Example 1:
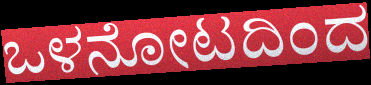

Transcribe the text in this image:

ಒಳನೋಟದಿಂದ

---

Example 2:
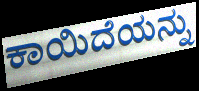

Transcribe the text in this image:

ಕಾಯಿದೆಯನ್ನು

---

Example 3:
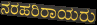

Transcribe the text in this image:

ನರಹರಿರಾಯರು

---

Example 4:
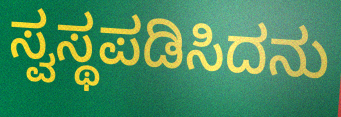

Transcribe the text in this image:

ಸ್ವಸ್ಥಪಡಿಸಿದನು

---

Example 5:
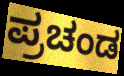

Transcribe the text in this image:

ಪ್ರಚಂಡ